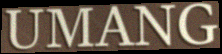
UMANG